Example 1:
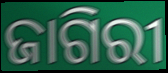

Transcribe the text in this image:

ଜାଗିରୀ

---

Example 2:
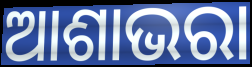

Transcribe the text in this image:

ଆଶାଭରା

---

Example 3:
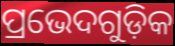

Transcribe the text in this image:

ପ୍ରଭେଦଗୁଡ଼ିକ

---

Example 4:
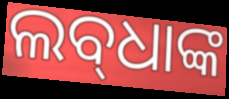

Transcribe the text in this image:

ଲବ୍‌ଧାଙ୍କ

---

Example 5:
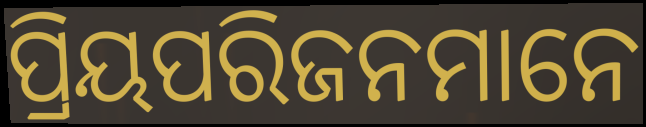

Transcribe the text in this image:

ପ୍ରିୟପରିଜନମାନେ